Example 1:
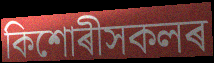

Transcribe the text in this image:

কিশোৰীসকলৰ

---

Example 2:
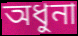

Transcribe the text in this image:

অধুনা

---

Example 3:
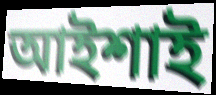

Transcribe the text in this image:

আইশাই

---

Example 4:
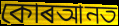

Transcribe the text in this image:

কোৰআনত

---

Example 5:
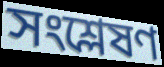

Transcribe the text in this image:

সংশ্লেষণ